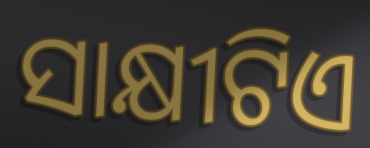
ସାକ୍ଷୀଟିଏ